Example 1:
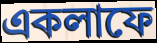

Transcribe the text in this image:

একলাফে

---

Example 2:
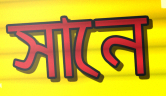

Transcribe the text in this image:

সানে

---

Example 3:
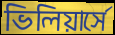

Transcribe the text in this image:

ভিলিয়ার্সে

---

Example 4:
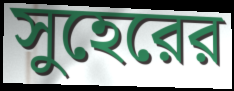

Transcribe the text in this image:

সুহেরের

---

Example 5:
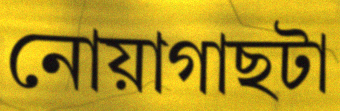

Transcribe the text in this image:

নোয়াগাছটা